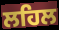
ਲਹਿਲ